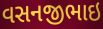
વસનજીભાઇ